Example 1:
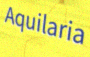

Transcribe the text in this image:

Aquilaria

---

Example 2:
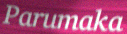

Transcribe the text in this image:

Parumaka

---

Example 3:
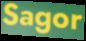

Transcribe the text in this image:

Sagor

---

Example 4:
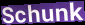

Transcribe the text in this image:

Schunk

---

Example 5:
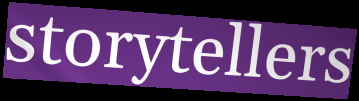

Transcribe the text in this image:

storytellers